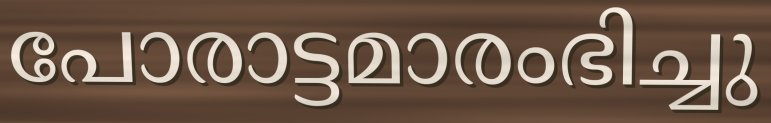
പോരാട്ടമാരംഭിച്ചു